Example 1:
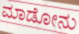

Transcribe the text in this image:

ಮಾಡೋನು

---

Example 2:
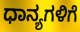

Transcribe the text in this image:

ಧಾನ್ಯಗಳಿಗೆ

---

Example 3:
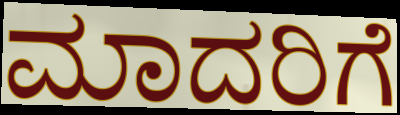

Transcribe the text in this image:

ಮಾದರಿಗೆ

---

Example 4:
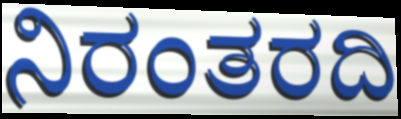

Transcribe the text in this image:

ನಿರಂತರದಿ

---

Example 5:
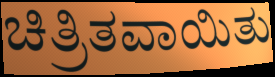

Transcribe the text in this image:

ಚಿತ್ರಿತವಾಯಿತು